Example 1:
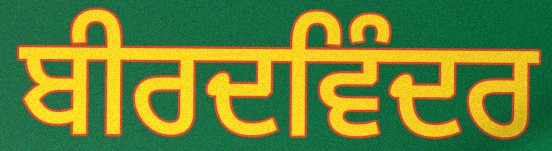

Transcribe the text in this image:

ਬੀਰਦਵਿੰਦਰ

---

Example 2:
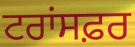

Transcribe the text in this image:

ਟਰਾਂਸਫ਼ਰ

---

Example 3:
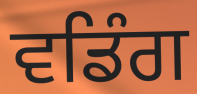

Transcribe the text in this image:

ਵਡਿੰਗ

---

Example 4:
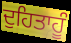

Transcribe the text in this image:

ਦੁਹਿਤਾਹੂੰ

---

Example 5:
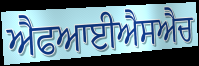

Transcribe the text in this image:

ਐਫਆਈਐਸਐਚ